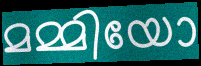
മമ്മിയോ